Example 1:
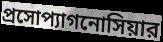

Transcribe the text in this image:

প্রসোপ্যাগনোসিয়ার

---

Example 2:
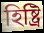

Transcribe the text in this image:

হিষ্ট্রি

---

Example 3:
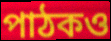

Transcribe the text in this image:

পাঠকও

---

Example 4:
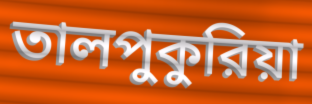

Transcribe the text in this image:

তালপুকুরিয়া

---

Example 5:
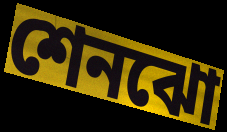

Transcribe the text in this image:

শেনঝো